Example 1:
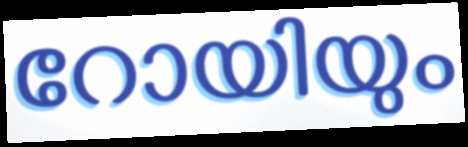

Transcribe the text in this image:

റോയിയും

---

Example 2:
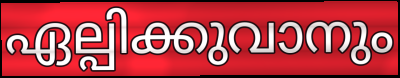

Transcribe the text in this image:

ഏല്പിക്കുവാനും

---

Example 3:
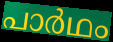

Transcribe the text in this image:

പാർഥം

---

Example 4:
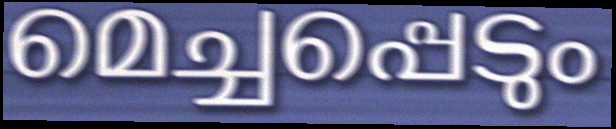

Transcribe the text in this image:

മെച്ചപ്പെടും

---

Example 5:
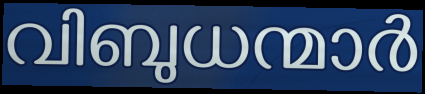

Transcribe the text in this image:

വിബുധന്മാർ